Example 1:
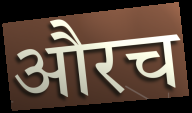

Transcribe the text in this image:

औरच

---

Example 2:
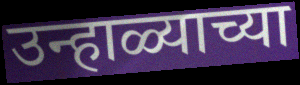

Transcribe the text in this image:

उन्हाळ्याच्या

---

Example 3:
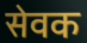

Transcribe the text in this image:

सेवक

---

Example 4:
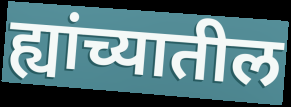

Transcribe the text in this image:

ह्यांच्यातील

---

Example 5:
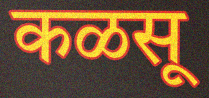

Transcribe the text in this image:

कळसू